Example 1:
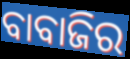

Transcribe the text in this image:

ବାବାଜିର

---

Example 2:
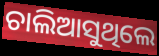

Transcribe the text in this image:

ଚାଲିଆସୁଥିଲେ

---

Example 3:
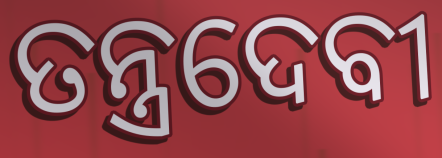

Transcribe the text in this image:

ତନ୍ତ୍ରଦେବୀ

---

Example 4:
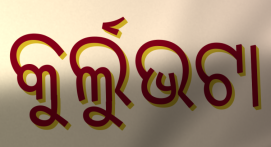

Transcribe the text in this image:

କୁର୍ଲୁଭଟା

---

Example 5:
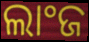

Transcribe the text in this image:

ଲାଂଜ